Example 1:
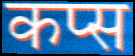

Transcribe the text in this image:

कप्स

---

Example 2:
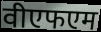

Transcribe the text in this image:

वीएफएम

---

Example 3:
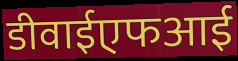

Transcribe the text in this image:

डीवाईएफआई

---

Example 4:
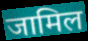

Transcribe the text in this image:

जामिल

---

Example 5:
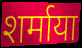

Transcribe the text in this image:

शर्माया